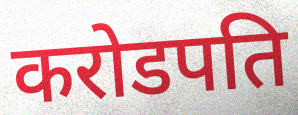
करोडपति